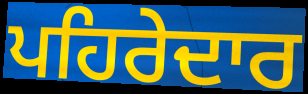
ਪਹਿਰੇਦਾਰ